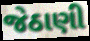
જેઠાણી